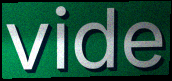
vide